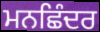
ਮਨਛਿੰਦਰ